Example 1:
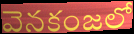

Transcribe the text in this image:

వెనకంజలో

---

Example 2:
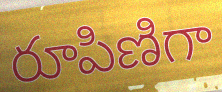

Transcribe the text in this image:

రూపిణిగా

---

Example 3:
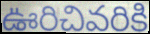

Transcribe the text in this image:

ఊరిచివరికి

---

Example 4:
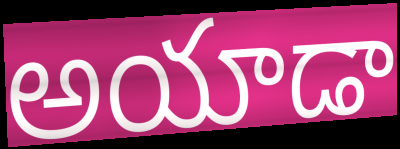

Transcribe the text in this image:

అయాడా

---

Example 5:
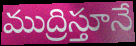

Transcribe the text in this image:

ముద్రిస్తూనే